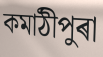
কমাঠীপুৰা